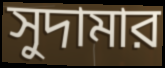
সুদামার